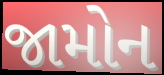
જામોન